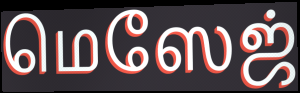
மெஸேஜ்